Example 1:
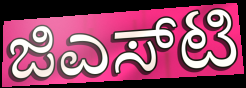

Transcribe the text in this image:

ಜಿಎಸ್‌ಟಿ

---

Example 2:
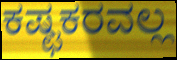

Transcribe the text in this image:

ಕಷ್ಟಕರವಲ್ಲ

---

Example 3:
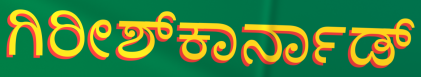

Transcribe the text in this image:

ಗಿರೀಶ್‌ಕಾರ್ನಾಡ್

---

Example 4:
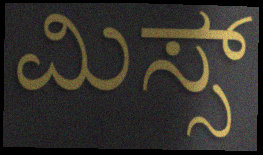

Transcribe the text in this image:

ಮಿಸ್ಸ್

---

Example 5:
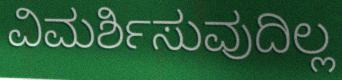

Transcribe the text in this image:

ವಿಮರ್ಶಿಸುವುದಿಲ್ಲ